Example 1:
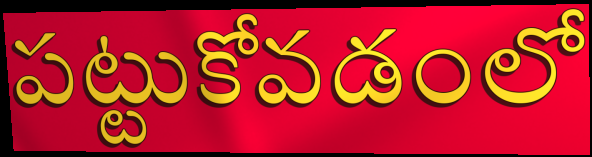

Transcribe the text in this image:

పట్టుకోవడంలో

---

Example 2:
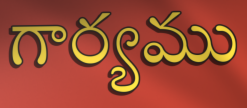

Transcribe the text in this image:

గార్యము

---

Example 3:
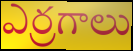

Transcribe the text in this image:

ఎర్రగాలు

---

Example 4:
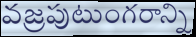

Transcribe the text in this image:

వజ్రపుటుంగరాన్ని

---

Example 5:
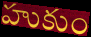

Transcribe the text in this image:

హుకుం